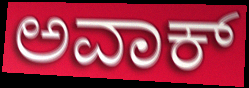
ಅವಾಕ್